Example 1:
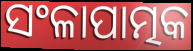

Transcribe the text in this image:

ସଂଳାପାତ୍ମକ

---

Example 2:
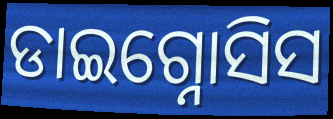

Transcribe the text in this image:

ଡାଇଗ୍ନୋସିସ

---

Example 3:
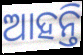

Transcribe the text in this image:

ଆହନ୍ତି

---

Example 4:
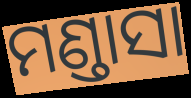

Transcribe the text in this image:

ମଣ୍ଡାସା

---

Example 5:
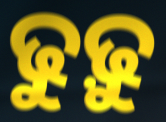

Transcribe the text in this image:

ଢୁଢ଼ୁ